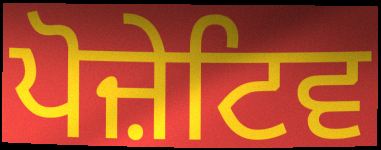
ਪੋਜ਼ੇਟਿਵ